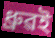
ধ্ৰুৱই